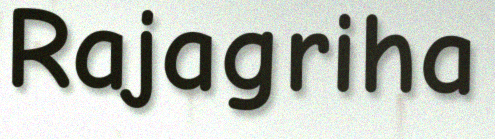
Rajagriha